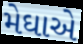
મેઘાએ